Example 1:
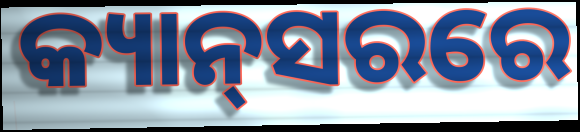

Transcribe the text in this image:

କ୍ୟାନ୍‌ସରରେ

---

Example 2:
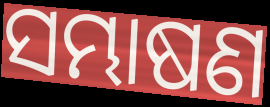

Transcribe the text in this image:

ସମ୍ଭାଷଣ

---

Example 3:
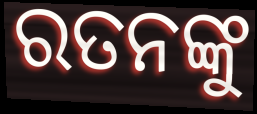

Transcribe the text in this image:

ରତନଙ୍କୁ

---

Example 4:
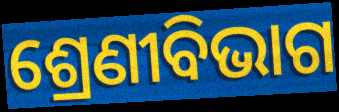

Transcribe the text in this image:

ଶ୍ରେଣୀବିଭାଗ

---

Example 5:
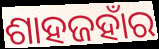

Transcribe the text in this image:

ଶାହଜହାଁର